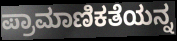
ಪ್ರಾಮಾಣಿಕತೆಯನ್ನ